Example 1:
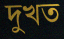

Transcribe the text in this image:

দুখত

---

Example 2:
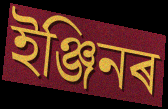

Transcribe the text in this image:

ইঞ্জিনৰ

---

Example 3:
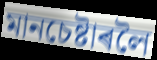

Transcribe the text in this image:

মানচেষ্টাৰলৈ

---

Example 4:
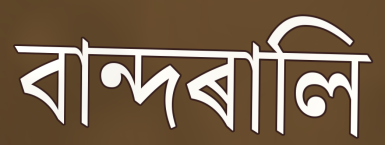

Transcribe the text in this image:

বান্দৰালি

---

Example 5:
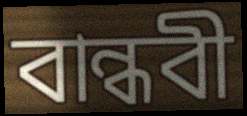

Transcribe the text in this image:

বান্ধবী